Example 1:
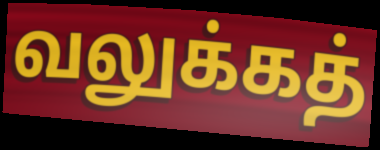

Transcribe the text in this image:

வலுக்கத்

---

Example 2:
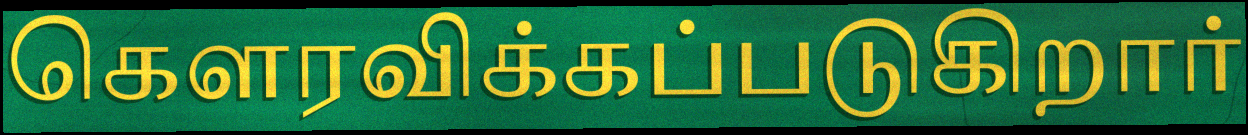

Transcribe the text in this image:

கௌரவிக்கப்படுகிறார்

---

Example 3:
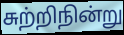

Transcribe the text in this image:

சுற்றிநின்று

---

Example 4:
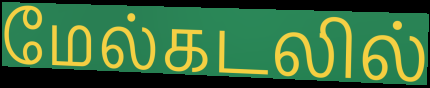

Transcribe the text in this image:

மேல்கடலில்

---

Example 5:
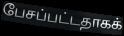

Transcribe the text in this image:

பேசப்பட்டதாகக்